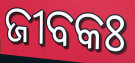
ଜୀବକଃ